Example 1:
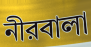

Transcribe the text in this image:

নীরবালা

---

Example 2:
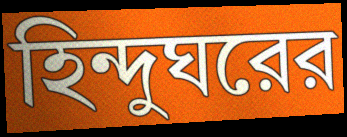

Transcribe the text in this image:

হিন্দুঘরের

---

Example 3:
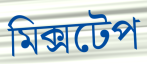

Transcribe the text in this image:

মিক্সটেপ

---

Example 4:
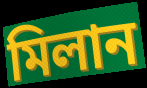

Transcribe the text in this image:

মিলান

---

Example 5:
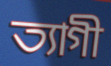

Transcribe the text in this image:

ত্যাগী